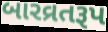
બારવ્રતરૂપ